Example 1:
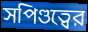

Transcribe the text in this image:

সপিণ্ডত্বের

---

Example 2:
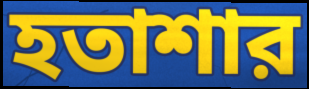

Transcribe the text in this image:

হতাশার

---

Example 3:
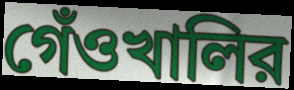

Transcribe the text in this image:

গেঁওখালির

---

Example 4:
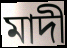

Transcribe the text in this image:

মাদী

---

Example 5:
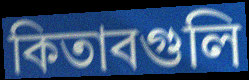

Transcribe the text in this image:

কিতাবগুলি